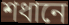
শধানে